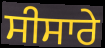
ਸੀਸਾਰੇ